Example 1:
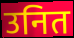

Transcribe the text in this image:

उनित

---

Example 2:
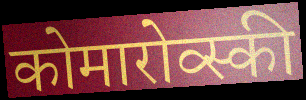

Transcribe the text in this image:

कोमारोव्स्की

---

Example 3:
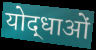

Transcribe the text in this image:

योद्धाओं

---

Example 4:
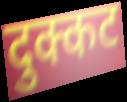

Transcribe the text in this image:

दुक्कट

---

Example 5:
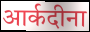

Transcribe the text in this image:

आर्कदीना